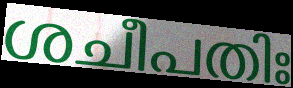
ശചീപതിഃ